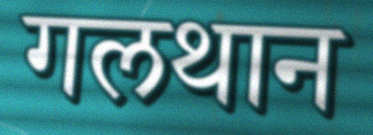
गलथान